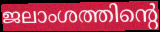
ജലാംശത്തിന്റെ